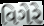
વિગેરે